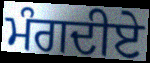
ਮੰਗਦੀਏ